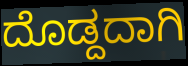
ದೊಡ್ದದಾಗಿ